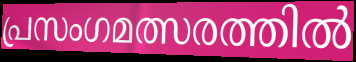
പ്രസംഗമത്സരത്തിൽ